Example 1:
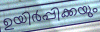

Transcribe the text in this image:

ഉയിർപ്പിക്കയും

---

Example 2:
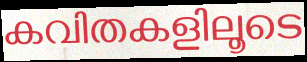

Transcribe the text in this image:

കവിതകളിലൂടെ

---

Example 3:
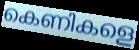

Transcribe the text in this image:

കെണികളെ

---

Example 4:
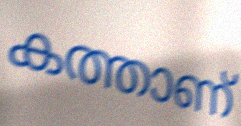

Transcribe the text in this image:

കത്താണ്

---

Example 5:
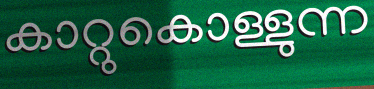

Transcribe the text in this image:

കാറ്റുകൊള്ളുന്ന